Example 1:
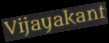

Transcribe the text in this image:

Vijayakant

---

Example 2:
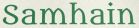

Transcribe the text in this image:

Samhain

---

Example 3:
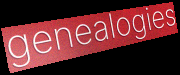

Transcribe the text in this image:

genealogies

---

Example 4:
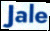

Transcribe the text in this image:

Jale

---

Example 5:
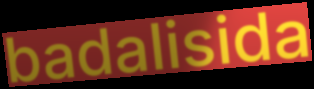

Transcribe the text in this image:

badalisida